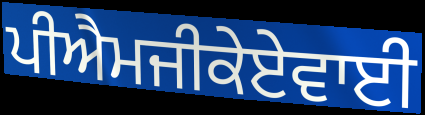
ਪੀਐਮਜੀਕੇਏਵਾਈ